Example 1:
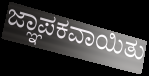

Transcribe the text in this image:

ಜ್ಞಾಪಕವಾಯಿತು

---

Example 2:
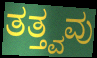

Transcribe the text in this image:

ತತ್ತ್ವವು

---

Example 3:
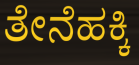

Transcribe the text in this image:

ತೇನೆಹಕ್ಕಿ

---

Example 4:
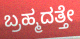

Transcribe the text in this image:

ಬ್ರಹ್ಮದತ್ತೇ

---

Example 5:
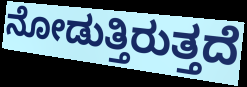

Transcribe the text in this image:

ನೋಡುತ್ತಿರುತ್ತದೆ